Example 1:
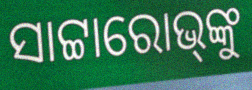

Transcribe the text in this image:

ସାଟ୍ଟାରୋଭ୍‌ଙ୍କୁ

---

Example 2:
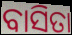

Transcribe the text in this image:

ବାସିତା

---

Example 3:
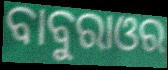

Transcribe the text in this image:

ବାବୁରାଓର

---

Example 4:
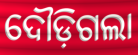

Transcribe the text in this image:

ଦୌଡ଼ିଗଲା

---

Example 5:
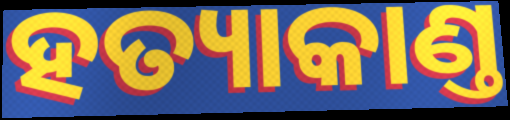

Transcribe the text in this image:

ହତ୍ୟାକାଣ୍ତ